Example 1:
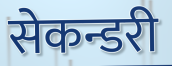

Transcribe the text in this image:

सेकन्डरी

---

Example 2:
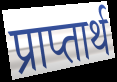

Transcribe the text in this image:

प्राप्तार्थ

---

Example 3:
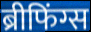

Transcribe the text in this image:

ब्रीफिंग्स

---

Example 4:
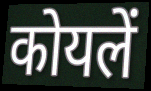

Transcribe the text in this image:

कोयलें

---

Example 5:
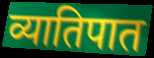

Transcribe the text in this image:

व्यातिपात